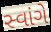
સ્વાંગે